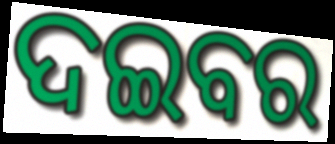
ଦଇବର